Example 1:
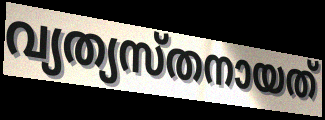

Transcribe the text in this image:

വ്യത്യസ്തനായത്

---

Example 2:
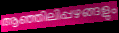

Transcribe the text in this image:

ആഞ്ഞിലിപ്പഴങ്ങളും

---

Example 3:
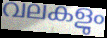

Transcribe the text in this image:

വലകളും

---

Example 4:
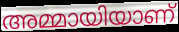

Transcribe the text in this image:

അമ്മായിയാണ്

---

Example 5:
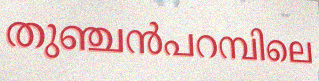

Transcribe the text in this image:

തുഞ്ചൻപറമ്പിലെ